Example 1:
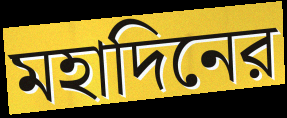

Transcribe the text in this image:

মহাদিনের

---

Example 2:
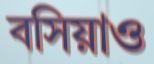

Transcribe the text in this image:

বসিয়াও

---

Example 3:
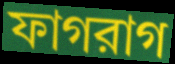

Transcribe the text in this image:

ফাগরাগ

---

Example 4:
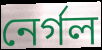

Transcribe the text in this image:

নের্গল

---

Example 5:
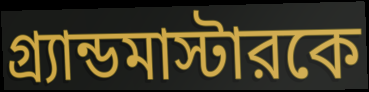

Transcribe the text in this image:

গ্র্যান্ডমাস্টারকে